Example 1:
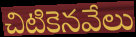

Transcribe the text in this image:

చిటికెనవేలు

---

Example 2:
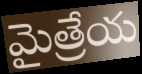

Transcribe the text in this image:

మైత్రేయ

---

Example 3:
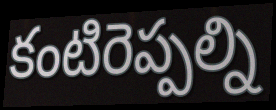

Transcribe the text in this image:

కంటిరెప్పల్ని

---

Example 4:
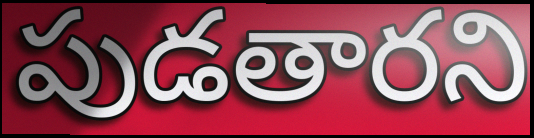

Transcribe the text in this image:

పుడతారని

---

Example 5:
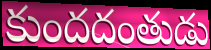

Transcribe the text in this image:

కుందదంతుడు